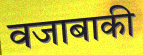
वजाबाकी